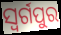
ସ୍ଵର୍ଗପୁର